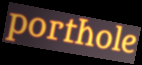
porthole